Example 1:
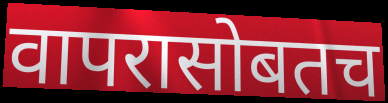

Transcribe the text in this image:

वापरासोबतच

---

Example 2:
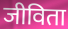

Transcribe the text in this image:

जीविता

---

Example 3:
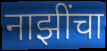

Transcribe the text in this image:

नाझींचा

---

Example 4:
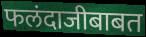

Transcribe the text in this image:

फलंदाजीबाबत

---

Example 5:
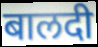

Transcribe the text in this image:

बालदी